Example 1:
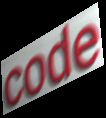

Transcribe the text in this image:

code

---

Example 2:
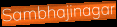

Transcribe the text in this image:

Sambhajinagar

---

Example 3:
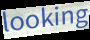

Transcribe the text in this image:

looking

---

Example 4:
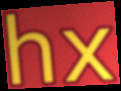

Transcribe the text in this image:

hx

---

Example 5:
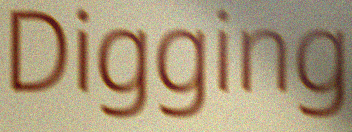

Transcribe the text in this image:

Digging